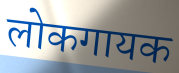
लोकगायक